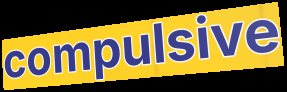
compulsive